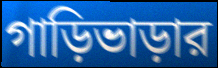
গাড়িভাড়ার